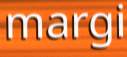
margi